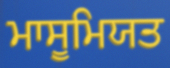
ਮਾਸੂਮਿਯਤ